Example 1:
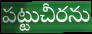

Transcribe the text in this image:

పట్టుచీరను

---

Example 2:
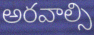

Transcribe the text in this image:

అరవాల్సి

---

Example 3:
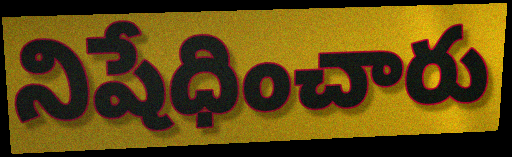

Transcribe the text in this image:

నిషేధించారు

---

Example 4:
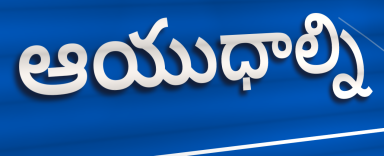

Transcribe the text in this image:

ఆయుధాల్ని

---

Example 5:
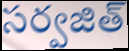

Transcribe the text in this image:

సర్వజిత్